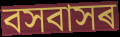
বসবাসৰ